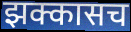
झक्कासच